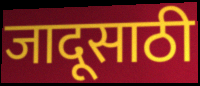
जादूसाठी